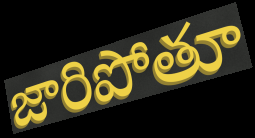
జారిపోతూ